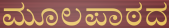
ಮೂಲಪಾಠದ